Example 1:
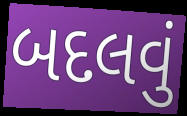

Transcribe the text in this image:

બદલવું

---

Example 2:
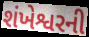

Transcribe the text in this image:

શંખેશ્વરની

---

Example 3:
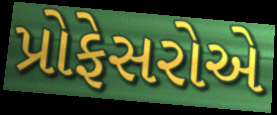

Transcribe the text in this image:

પ્રોફેસરોએ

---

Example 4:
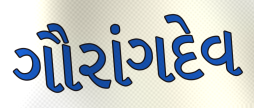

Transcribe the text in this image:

ગૌરાંગદેવ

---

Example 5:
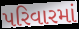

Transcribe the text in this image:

પરિવારમાં